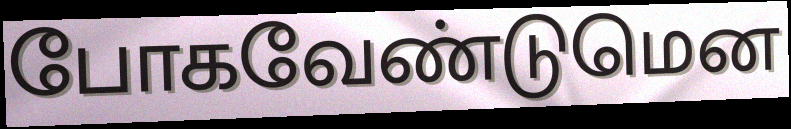
போகவேண்டுமென